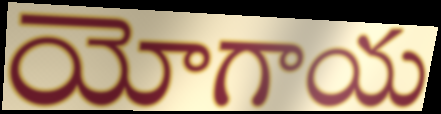
యోగాయ